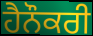
ਹੈਨੌਕਰੀ